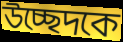
উচ্ছেদকে